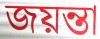
জয়ন্তা